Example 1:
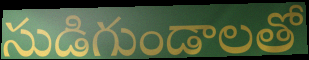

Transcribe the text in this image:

సుడిగుండాలతో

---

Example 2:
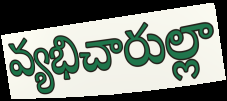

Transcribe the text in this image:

వ్యభిచారుల్లా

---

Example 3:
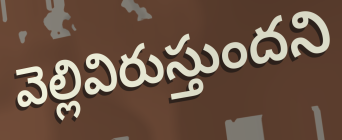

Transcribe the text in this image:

వెల్లివిరుస్తుందని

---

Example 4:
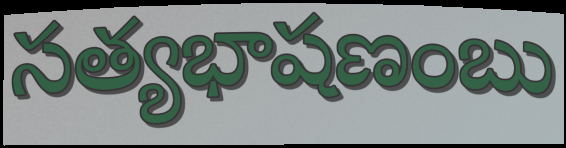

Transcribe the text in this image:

సత్యభాషణంబు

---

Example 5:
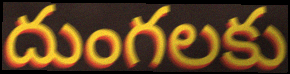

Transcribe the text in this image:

దుంగలకు